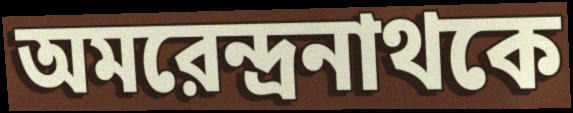
অমরেন্দ্রনাথকে